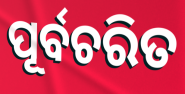
ପୂର୍ବଚରିତ